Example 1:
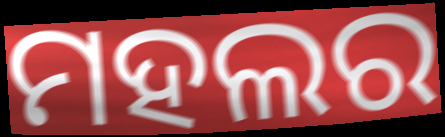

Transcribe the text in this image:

ମହଲର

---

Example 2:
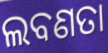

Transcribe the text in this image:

ଲବଣତା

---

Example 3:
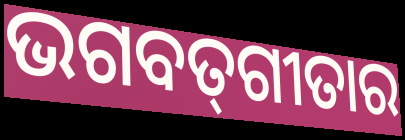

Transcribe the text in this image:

ଭଗବତ୍‍ଗୀତାର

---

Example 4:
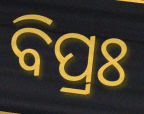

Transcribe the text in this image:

ବିପ୍ରଃ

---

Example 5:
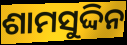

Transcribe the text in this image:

ଶାମସୁଦ୍ଦିନ